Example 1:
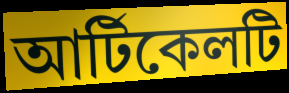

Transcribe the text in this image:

আর্টিকেলটি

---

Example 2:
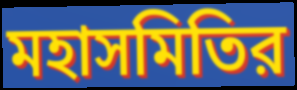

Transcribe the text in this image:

মহাসমিতির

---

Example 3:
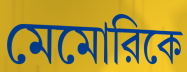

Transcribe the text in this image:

মেমোরিকে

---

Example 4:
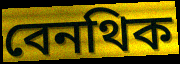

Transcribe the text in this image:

বেনথিক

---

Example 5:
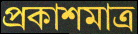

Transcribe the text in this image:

প্রকাশমাত্র